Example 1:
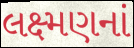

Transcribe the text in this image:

લક્ષ્મણનાં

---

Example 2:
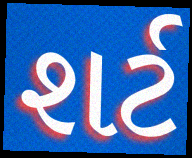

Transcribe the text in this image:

શર્ટ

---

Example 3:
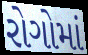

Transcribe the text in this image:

રોગોમાં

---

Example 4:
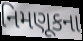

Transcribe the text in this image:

નિમણૂકના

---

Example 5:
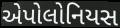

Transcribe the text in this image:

એપોલોનિયસ